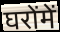
घरोंमें